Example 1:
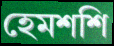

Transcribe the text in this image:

হেমশশি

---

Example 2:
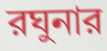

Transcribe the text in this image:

রঘুনার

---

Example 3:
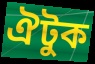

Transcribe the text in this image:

ঐটুক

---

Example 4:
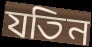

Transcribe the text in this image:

যতিন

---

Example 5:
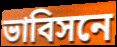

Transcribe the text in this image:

ভাবিসনে